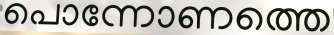
പൊന്നോണത്തെ